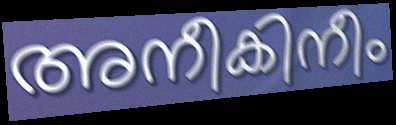
അനീകിനീം